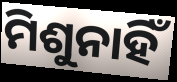
ମିଶୁନାହିଁ